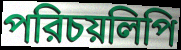
পরিচয়লিপি